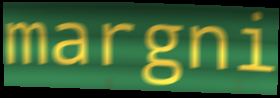
margni